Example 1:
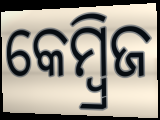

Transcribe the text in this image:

କେମ୍ବ୍ରିଜ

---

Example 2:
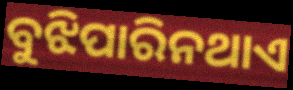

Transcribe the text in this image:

ବୁଝିପାରିନଥାଏ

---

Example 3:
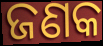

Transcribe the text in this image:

ଜଣକ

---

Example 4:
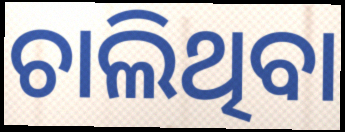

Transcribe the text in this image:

ଚାଲିଥିବା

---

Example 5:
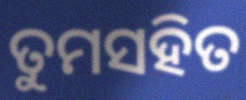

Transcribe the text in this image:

ତୁମସହିତ